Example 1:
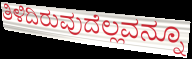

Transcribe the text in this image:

ತಿಳಿದಿರುವುದೆಲ್ಲವನ್ನೂ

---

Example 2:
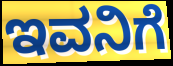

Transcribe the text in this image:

ಇವನಿಗೆ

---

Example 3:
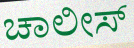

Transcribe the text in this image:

ಚಾಲೀಸ್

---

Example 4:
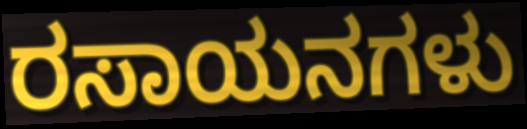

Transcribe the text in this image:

ರಸಾಯನಗಳು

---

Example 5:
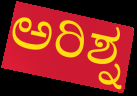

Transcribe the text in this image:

ಅರಿಶ್ನ